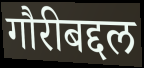
गौरीबद्दल